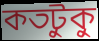
কতটুকু